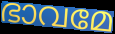
ഭാവമേ